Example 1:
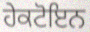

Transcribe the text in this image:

ਹੇਕਟੋਇਨ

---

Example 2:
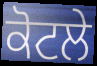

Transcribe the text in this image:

ਕੋਟਲੇ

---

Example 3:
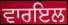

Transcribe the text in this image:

ਵਾਰਇਲ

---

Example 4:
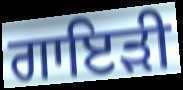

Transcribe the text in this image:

ਗਾਇੜੀ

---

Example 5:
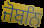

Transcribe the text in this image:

ਜੋਬਨਿ